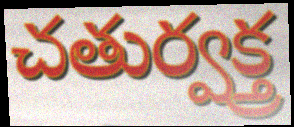
చతుర్వక్త్ర